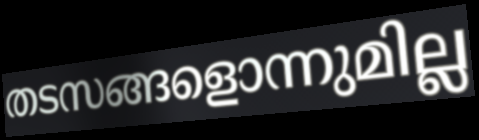
തടസങ്ങളൊന്നുമില്ല